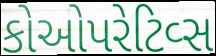
કોઓપરેટિવ્સ